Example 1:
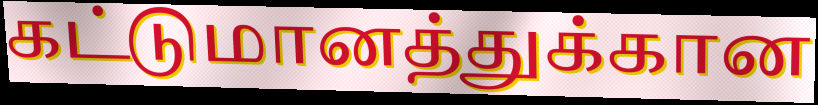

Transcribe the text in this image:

கட்டுமானத்துக்கான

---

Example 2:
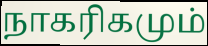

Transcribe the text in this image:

நாகரிகமும்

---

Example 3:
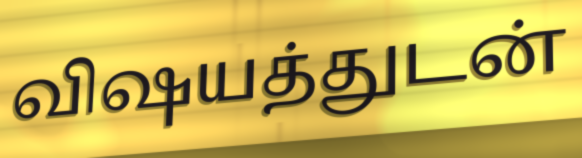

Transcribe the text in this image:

விஷயத்துடன்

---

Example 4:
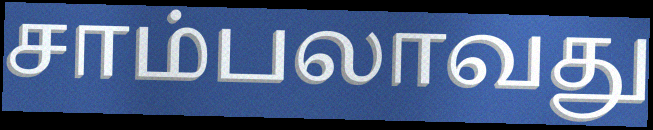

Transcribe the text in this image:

சாம்பலாவது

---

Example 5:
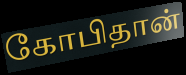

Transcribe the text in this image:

கோபிதான்